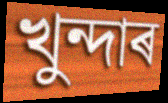
খুন্দাৰ